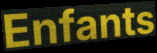
Enfants